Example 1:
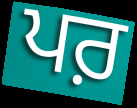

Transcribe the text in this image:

ਪਰ਼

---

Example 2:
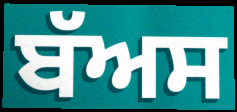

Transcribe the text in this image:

ਬੱਅਸ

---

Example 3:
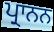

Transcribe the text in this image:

ਪ੍ਰਾਨਨ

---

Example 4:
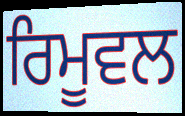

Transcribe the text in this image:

ਰਿਮੂਵਲ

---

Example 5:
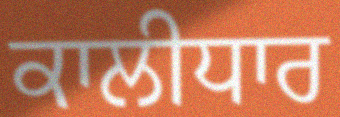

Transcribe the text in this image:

ਕਾਲੀਧਾਰ